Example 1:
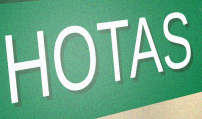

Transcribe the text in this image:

HOTAS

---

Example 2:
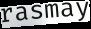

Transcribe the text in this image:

rasmay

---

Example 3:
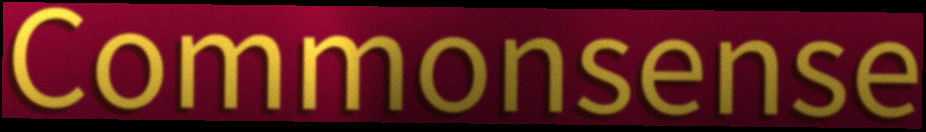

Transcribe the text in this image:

Commonsense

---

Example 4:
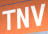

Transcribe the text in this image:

TNV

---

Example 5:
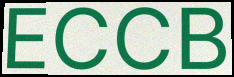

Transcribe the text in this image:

ECCB